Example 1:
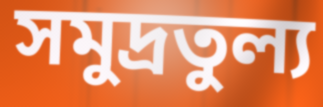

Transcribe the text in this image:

সমুদ্রতুল্য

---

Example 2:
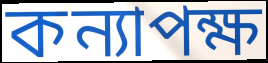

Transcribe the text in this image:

কন্যাপক্ষ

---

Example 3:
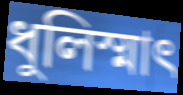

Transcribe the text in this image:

ধুলিস্মাৎ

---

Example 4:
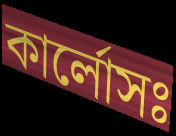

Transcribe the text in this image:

কার্লোসঃ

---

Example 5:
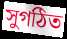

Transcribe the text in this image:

সুগঠিত